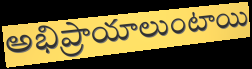
అభిప్రాయాలుంటాయి